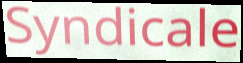
Syndicale